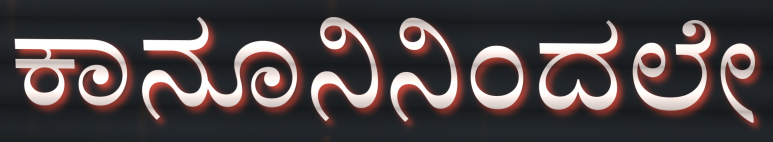
ಕಾನೂನಿನಿಂದಲೇ